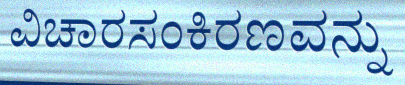
ವಿಚಾರಸಂಕಿರಣವನ್ನು